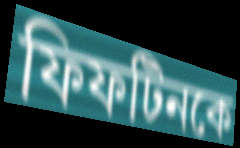
ফিফটিনকে